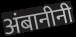
अंबानीनी